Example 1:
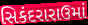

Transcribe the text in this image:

સિકંદરારાઉમાં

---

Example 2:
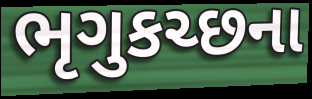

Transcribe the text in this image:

ભૃગુકચ્છના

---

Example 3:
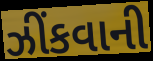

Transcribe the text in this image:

ઝીંકવાની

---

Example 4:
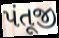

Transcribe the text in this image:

પંતૂજી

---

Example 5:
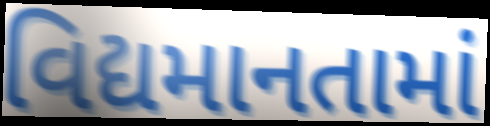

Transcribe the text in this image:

વિદ્યમાનતામાં